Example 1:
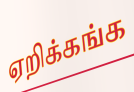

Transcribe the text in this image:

ஏறிக்கங்க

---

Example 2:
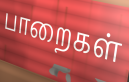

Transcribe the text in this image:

பாறைகள்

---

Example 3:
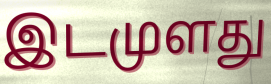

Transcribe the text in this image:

இடமுளது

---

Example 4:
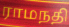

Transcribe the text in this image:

ராமநதி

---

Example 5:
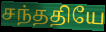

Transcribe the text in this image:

சந்ததியே